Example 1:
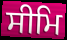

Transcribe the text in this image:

ਸੀਮਿ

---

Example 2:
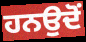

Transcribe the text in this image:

ਹਨਉਦੋਂ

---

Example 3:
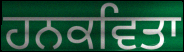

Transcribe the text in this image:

ਹਨਕਵਿਤਾ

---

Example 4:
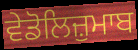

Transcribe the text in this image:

ਵੇਡੋਲਿਜ਼ੁਮਾਬ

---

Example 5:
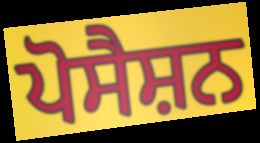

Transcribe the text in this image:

ਪੋਸੈਸ਼ਨ